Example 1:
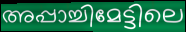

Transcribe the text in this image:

അപ്പാച്ചിമേട്ടിലെ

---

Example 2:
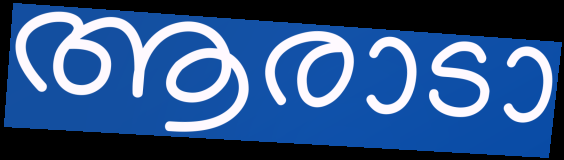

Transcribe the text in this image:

ആരാടാ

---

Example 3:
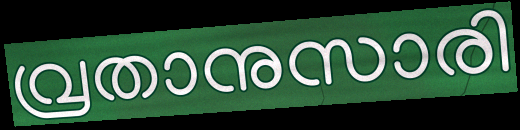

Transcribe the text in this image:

വ്രതാനുസാരി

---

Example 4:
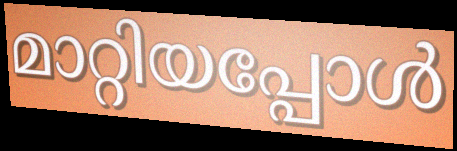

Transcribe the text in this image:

മാറ്റിയപ്പോൾ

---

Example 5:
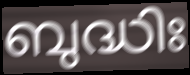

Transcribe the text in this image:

ബുദ്ധിഃ